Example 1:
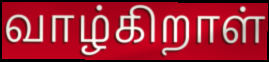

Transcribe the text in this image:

வாழ்கிறாள்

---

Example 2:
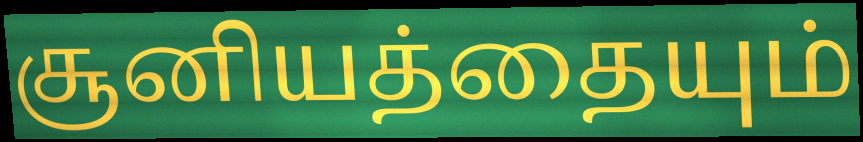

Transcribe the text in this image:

சூனியத்தையும்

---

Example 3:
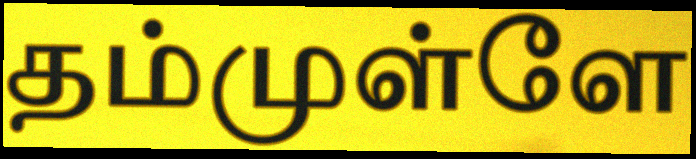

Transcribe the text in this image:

தம்முள்ளே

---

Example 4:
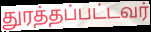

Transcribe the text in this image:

துரத்தப்பட்டவர்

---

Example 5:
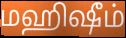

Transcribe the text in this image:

மஹிஷீம்